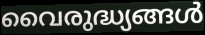
വൈരുദ്ധ്യങ്ങൾ